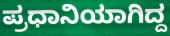
ಪ್ರಧಾನಿಯಾಗಿದ್ದ